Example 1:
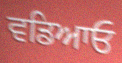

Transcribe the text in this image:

ਵਡਿਆਓ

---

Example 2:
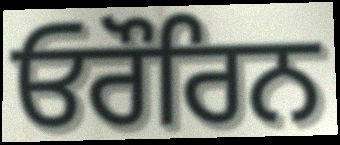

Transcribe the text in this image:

ਓਰੌਰਿਨ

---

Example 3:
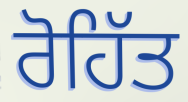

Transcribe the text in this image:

ਰੋਹਿੱਤ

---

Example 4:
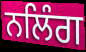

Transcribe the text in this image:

ਨਲਿੰਗ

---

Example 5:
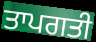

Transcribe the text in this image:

ਤਾਪਗਤੀ